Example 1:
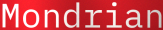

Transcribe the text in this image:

Mondrian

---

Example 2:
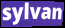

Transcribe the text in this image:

sylvan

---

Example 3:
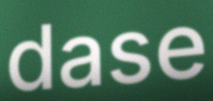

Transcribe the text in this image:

dase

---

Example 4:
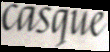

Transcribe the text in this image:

casque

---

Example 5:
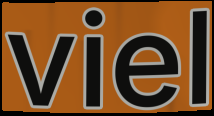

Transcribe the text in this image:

viel